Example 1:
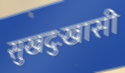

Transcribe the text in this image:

सुखदुःखासी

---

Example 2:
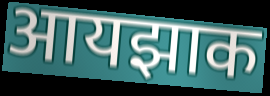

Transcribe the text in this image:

आयझाक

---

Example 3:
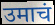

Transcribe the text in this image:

उमाचं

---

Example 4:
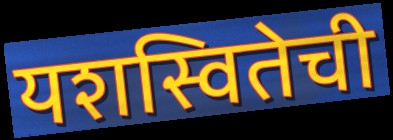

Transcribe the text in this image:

यशस्वितेची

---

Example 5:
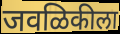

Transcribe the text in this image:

जवळिकीला